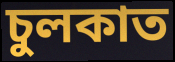
চুলকাত